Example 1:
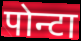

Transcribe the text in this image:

पोन्टा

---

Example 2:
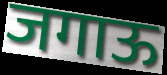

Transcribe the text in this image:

जगाऊ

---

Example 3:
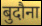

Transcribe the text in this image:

बुदौना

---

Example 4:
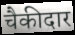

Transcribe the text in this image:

चैकीदार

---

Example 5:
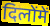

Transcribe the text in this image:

दिलोंमें